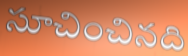
సూచించినది